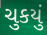
ચુકયું